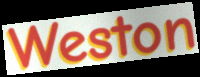
Weston